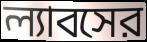
ল্যাবসের